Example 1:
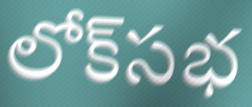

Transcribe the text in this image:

లోక్‌సభ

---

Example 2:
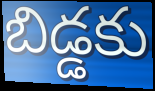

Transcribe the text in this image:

బిడ్డకు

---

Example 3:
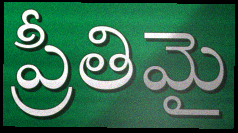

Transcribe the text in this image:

ప్రీతిమై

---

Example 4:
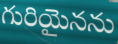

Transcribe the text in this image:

గురియైనను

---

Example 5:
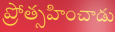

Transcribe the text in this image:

ప్రోత్సహించాడు